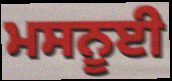
ਮਸਨੂਈ